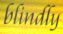
blindly